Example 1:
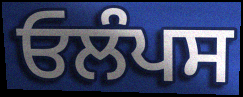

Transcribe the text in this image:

ਓਲੰਪਸ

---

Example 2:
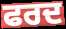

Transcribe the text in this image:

ਫਰਦ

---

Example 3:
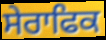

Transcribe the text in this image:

ਸੇਰਾਫਿਕ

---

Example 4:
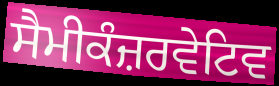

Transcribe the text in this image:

ਸੈਮੀਕੰਜ਼ਰਵੇਟਿਵ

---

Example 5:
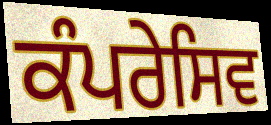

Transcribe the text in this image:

ਕੰਪਰੇਸਿਵ